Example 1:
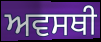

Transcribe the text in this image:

ਅਵਸਥੀ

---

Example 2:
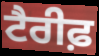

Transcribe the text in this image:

ਟੈਰੀਫ਼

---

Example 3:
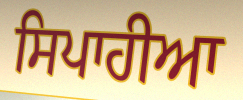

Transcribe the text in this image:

ਸਿਪਾਹੀਆ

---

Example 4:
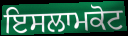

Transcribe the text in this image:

ਇਸਲਾਮਕੋਟ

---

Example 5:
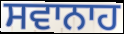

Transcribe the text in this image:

ਸਵਾਨਾਹ